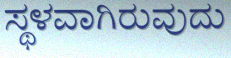
ಸ್ಥಳವಾಗಿರುವುದು